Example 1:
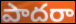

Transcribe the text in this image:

పాదరా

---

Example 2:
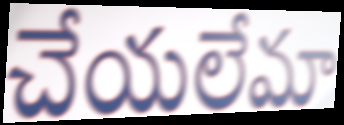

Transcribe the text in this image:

చేయలేమా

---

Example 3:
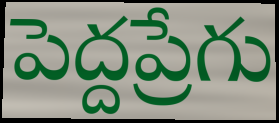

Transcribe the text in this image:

పెద్దప్రేగు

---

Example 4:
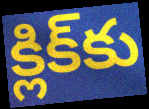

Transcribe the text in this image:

క్లిక్‌కు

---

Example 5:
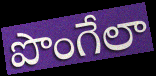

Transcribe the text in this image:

పొంగేలా